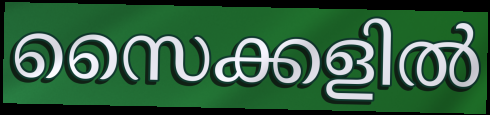
സൈക്കളിൽ